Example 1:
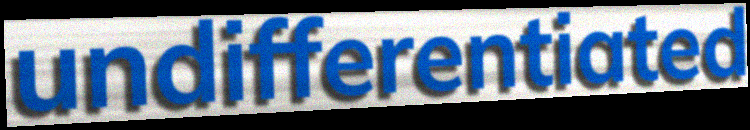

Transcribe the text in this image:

undifferentiated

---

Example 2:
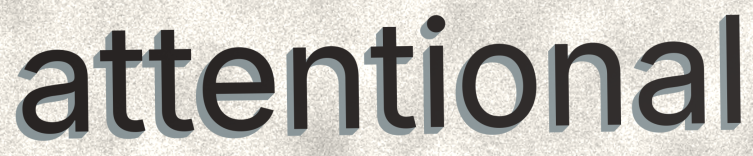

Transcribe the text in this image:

attentional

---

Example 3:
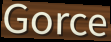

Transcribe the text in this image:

Gorce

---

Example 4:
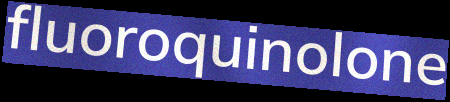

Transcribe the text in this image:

fluoroquinolone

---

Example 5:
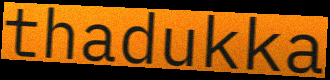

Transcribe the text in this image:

thadukka